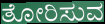
ತೋರಿಸುವ